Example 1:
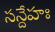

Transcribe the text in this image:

సన్దేహః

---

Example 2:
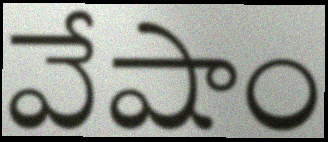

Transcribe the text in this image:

వేషాం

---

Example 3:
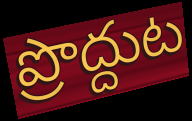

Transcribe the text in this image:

ప్రొద్దుట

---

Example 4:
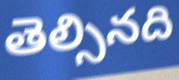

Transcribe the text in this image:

తెల్సినది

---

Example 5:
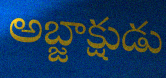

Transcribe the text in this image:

అబ్జాక్షుడు